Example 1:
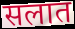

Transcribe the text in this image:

सलात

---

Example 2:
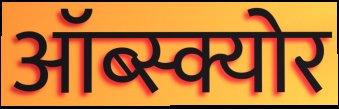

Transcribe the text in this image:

ऑब्स्क्योर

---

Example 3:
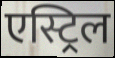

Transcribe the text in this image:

एस्ट्रिल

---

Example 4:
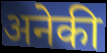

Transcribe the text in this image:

अनेकी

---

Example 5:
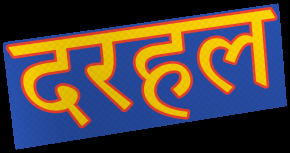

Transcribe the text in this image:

दरहल